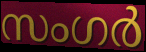
സംഗർ